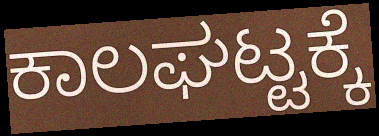
ಕಾಲಘಟ್ಟಕ್ಕೆ